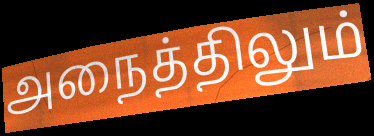
அநைத்திலும்